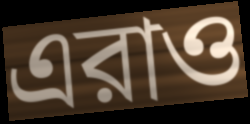
এরাও